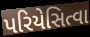
પરિયેસિત્વા